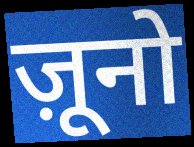
ज़ूनो